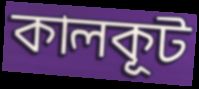
কালকূট